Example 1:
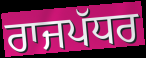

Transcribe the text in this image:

ਰਾਜਪੱਧਰ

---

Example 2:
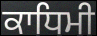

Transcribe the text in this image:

ਕਾਧਿਮੀ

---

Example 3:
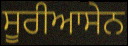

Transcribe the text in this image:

ਸੂਰੀਆਸੇਨ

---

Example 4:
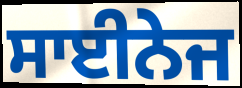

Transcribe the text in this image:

ਸਾਈਨੇਜ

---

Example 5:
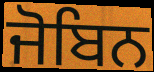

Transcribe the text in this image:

ਜੋਬਿਨ